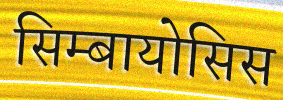
सिम्बायोसिस